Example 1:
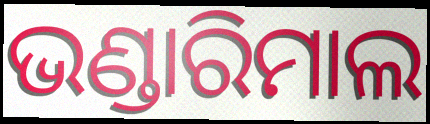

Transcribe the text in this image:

ଭଣ୍ଡାରିମାଲ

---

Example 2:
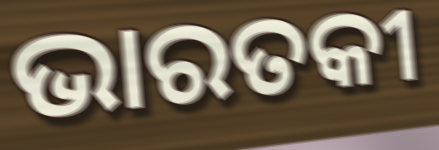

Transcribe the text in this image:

ଭାରତକୀ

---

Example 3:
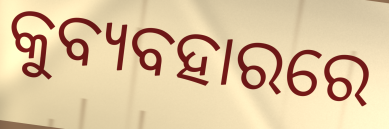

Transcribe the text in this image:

କୁବ୍ୟବହାରରେ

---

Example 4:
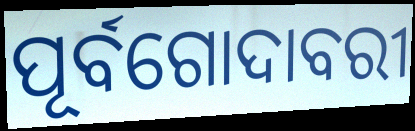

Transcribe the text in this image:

ପୂର୍ବଗୋଦାବରୀ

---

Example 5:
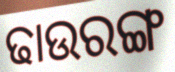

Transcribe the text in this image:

ଢାଉରଙ୍ଗ